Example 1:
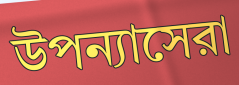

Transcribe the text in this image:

উপন্যাসেরা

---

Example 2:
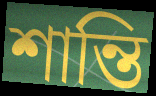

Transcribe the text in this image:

শান্তি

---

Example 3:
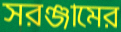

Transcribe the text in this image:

সরঞ্জামের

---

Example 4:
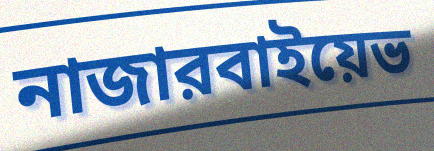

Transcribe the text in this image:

নাজারবাইয়েভ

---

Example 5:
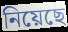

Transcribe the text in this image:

নিয়েছে